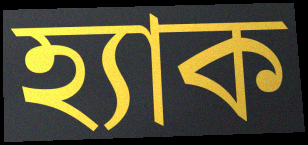
হ্যাক